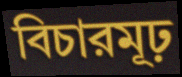
বিচারমূঢ়